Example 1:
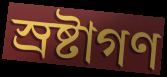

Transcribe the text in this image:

স্রষ্টাগণ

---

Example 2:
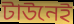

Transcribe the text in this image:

টাউনেই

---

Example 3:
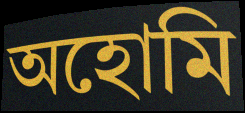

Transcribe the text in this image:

অহোমি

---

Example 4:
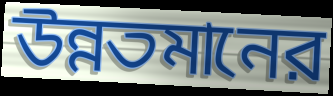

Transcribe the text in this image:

উন্নতমানের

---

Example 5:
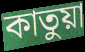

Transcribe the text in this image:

কাতুয়া